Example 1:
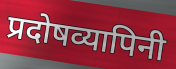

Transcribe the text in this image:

प्रदोषव्यापिनी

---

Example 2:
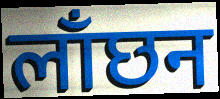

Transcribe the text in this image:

लाँछन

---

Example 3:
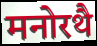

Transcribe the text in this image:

मनोरथै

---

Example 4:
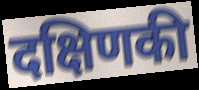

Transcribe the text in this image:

दक्षिणकी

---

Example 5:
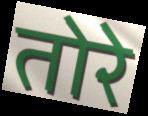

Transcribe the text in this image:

तोरे